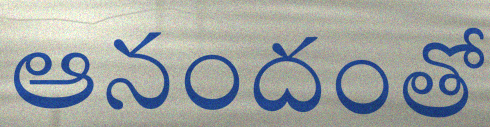
ఆనందంతో